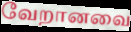
வேறானவை